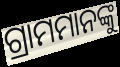
ଗ୍ରାମମାନଙ୍କୁ